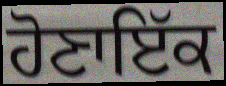
ਹੋਣਾਇੱਕ